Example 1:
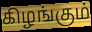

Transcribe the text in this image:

கிழங்கும்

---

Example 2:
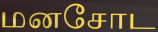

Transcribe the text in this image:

மனசோட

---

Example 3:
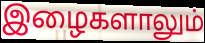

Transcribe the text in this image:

இழைகளாலும்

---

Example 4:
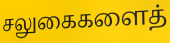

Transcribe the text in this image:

சலுகைகளைத்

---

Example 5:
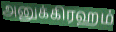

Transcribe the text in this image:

அனுக்கிரஹம்